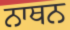
ਨਾਥਨ